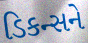
ડિકન્સને